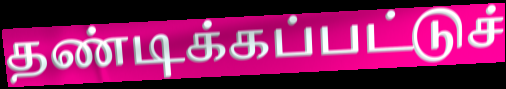
தண்டிக்கப்பட்டுச்